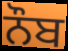
ਨੌਬ